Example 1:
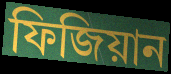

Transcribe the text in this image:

ফিজিয়ান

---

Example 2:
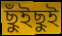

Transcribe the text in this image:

ছুঁইছুই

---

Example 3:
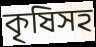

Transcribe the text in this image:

কৃষিসহ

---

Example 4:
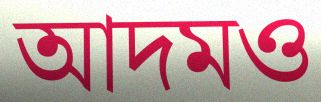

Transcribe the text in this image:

আদমও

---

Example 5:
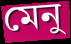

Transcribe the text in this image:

মেনু